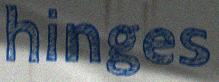
hinges